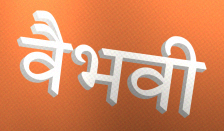
वैभवी